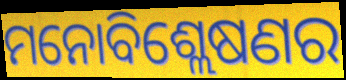
ମନୋବିଶ୍ଲେଷଣର